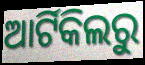
ଆର୍ଟିକିଲରୁ